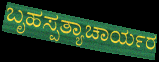
ಬೃಹಸ್ಪತ್ಯಾಚಾರ್ಯರ